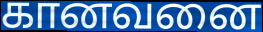
கானவனை